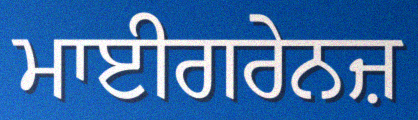
ਮਾਈਗਰੇਨਜ਼